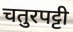
चतुरपट्टी